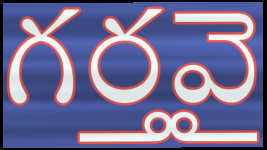
గర్తవై